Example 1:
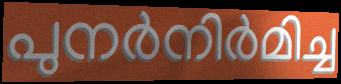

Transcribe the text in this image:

പുനർനിർമിച്ച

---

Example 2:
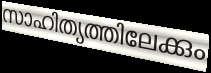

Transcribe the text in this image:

സാഹിത്യത്തിലേക്കും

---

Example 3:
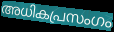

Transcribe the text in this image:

അധികപ്രസംഗം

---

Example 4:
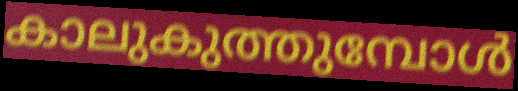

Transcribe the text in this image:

കാലുകുത്തുമ്പോൾ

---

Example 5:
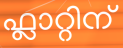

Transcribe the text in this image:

ഫ്ലാറ്റിന്